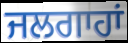
ਜਲਗਾਹਾਂ